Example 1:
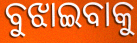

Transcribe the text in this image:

ବୁଝାଇବାକୁ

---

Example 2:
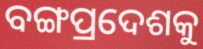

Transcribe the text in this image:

ବଙ୍ଗପ୍ରଦେଶକୁ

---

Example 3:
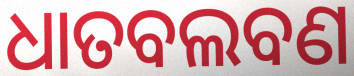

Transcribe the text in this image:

ଧାତବଲବଣ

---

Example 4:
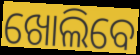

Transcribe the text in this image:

ଖୋଲିବେ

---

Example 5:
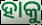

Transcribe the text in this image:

ହାକୁ